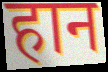
हान